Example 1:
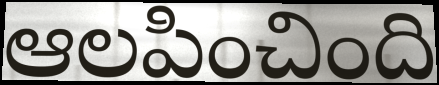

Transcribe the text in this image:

ఆలపించింది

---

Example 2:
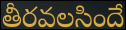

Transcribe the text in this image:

తీరవలసిందే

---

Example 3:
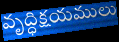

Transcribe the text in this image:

వృద్ధిక్షయములు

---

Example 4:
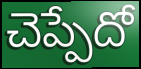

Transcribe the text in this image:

చెప్పేదో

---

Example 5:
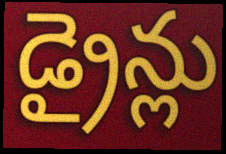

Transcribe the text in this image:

డ్రైన్లు